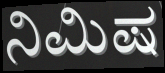
ನಿಮಿಷ